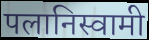
पलानिस्वामी